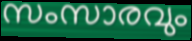
സംസാരവും